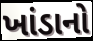
ખાંડાનો